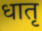
धातृ